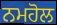
ਨਮਹੋਲ